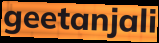
geetanjali